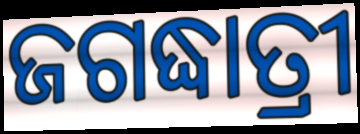
ଜଗଦ୍ଧାତ୍ରୀ